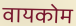
वायकोम